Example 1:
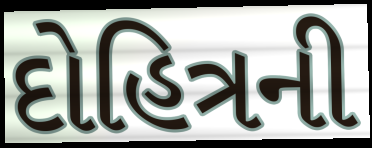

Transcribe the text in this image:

દોહિત્રની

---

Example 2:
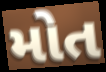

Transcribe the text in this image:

મોત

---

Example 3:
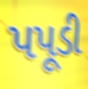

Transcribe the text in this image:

પપૂડી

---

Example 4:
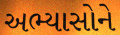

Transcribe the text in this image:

અભ્યાસોને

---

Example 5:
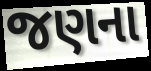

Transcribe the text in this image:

જણના